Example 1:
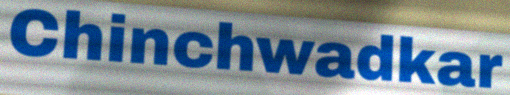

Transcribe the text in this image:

Chinchwadkar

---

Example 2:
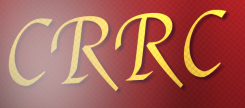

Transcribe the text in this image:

CRRC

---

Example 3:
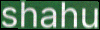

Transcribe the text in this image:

shahu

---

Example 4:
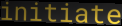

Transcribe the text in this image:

initiate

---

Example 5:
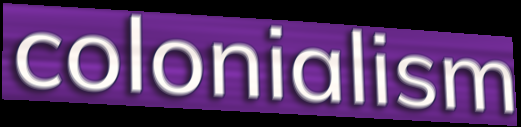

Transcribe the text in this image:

colonialism